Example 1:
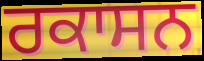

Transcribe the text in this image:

ਰਕਾਸਨ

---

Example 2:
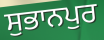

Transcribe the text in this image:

ਸੁਭਾਨਪੁਰ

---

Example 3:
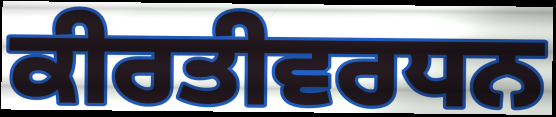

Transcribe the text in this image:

ਕੀਰਤੀਵਰਧਨ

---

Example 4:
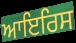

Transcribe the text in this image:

ਆਇਰਿਸ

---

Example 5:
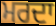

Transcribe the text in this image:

ਮਰਦਾ